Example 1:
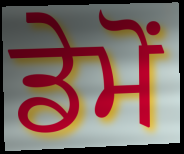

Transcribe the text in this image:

ਡੇਮੋਂ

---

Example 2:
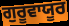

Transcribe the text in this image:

ਗੁਰੂਵਾਯੂਰ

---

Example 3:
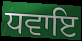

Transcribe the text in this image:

ਧਵਾਇ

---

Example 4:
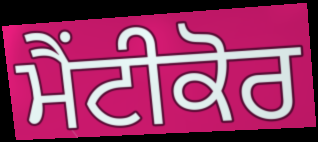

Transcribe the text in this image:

ਮੈਂਟੀਕੋਰ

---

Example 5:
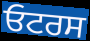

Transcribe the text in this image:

ਓਟਰਸ